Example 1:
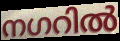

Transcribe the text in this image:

നഗറിൽ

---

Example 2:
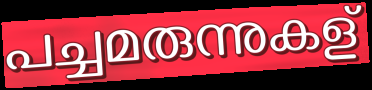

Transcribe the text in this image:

പച്ചമരുന്നുകള്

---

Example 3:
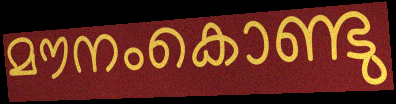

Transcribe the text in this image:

മൗനംകൊണ്ടു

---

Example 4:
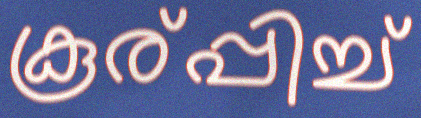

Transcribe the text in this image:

കൂര്പ്പിച്ച്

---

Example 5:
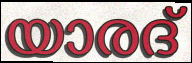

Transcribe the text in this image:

യാരദ്